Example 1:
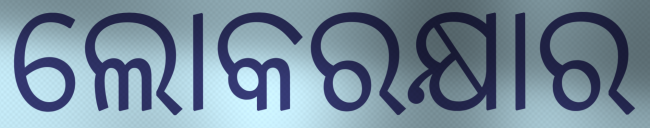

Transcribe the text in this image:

ଲୋକରକ୍ଷାର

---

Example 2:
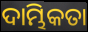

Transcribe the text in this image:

ଦାମ୍ଭିକତା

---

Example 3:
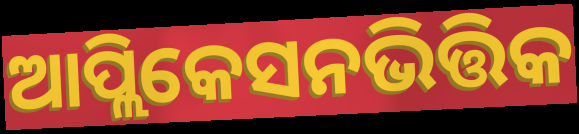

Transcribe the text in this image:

ଆପ୍ଲିକେସନଭିତ୍ତିକ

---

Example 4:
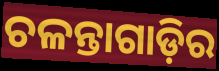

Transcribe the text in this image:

ଚଳନ୍ତାଗାଡ଼ିର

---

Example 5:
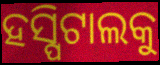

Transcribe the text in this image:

ହସ୍ପିଟାଲକୁ